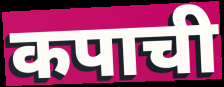
कपाची